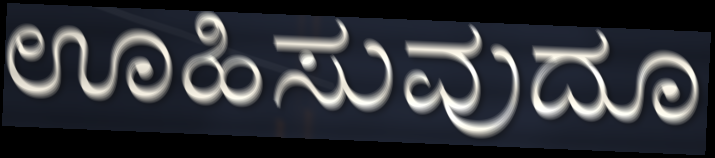
ಊಹಿಸುವುದೂ